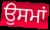
ਉਸਮਾਂ